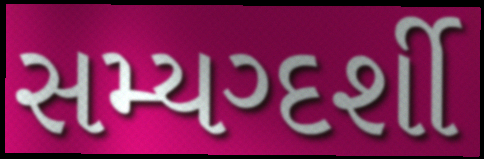
સમ્યગ્દર્શી